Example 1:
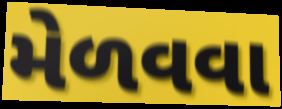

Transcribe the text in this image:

મેળવવા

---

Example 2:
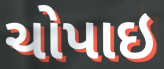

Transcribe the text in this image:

ચોપાઇ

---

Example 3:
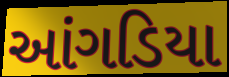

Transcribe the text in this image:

આંગડિયા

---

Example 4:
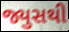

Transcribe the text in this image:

જ્યુસથી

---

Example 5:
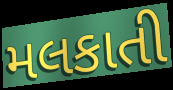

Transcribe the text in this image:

મલકાતી